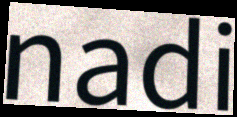
nadi